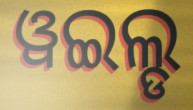
ୱଇଲ୍ଡ